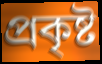
প্রকৃষ্ট